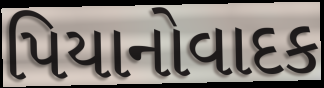
પિયાનોવાદક